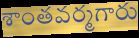
శాంతవర్మగారు